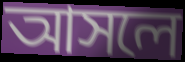
আসলে